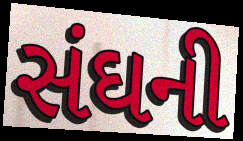
સંઘની